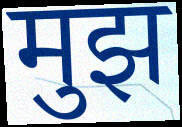
मुझ